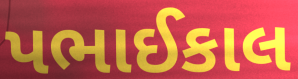
પભાઈકાલ